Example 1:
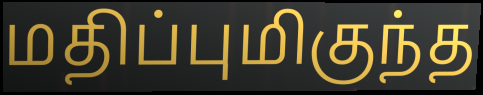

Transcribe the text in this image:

மதிப்புமிகுந்த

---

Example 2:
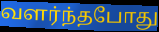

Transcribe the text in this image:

வளர்ந்தபோது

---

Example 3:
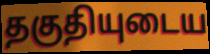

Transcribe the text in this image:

தகுதியுடைய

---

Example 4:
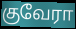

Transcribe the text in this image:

குவேரா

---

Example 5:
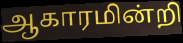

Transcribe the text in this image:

ஆகாரமின்றி